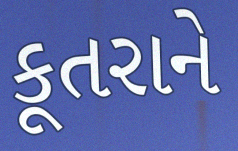
કૂતરાને